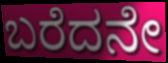
ಬರೆದನೇ